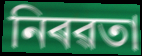
নিৰৱতা